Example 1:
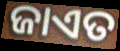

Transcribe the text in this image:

ଜାଏତ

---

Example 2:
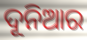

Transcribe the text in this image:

ଦୂନିଆର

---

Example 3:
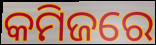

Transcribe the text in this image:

କମିଜରେ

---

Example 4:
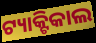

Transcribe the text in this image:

ଟ୍ୟାକ୍ଟିକାଲ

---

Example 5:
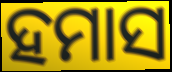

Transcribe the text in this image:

ହମାସ